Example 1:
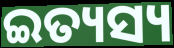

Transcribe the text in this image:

ଇତ୍ୟସ୍ୟ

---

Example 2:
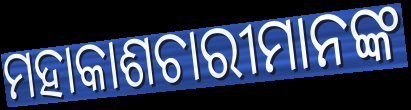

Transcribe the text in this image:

ମହାକାଶଚାରୀମାନଙ୍କ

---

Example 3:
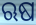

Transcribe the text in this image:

ଋଷ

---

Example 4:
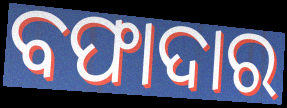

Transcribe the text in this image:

ବଫାଦାର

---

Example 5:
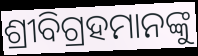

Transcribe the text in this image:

ଶ୍ରୀବିଗ୍ରହମାନଙ୍କୁ